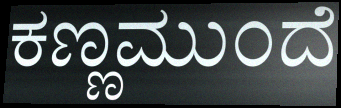
ಕಣ್ಣಮುಂದೆ